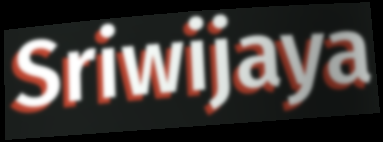
Sriwijaya